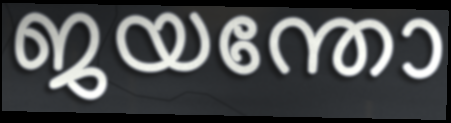
ജയന്തോ